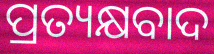
ପ୍ରତ୍ୟକ୍ଷବାଦ